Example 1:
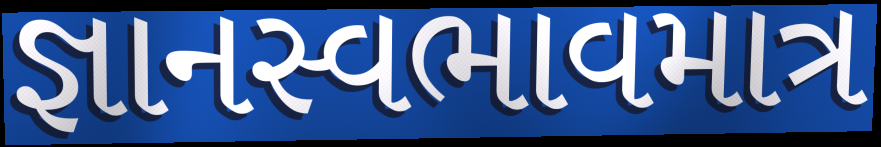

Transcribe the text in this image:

જ્ઞાનસ્વભાવમાત્ર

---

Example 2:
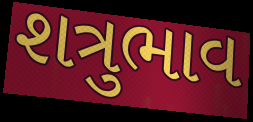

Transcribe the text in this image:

શત્રુભાવ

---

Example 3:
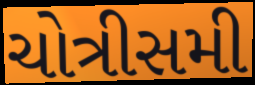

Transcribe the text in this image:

ચોત્રીસમી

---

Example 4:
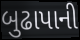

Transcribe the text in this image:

બુઢાપાની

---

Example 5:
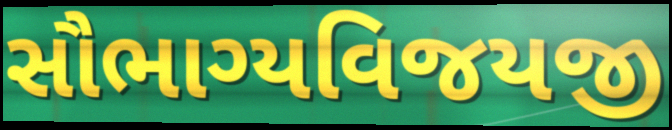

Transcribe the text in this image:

સૌભાગ્યવિજયજી